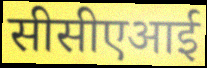
सीसीएआई